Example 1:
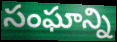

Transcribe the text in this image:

సంఘాన్ని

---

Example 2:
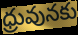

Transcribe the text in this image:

ధ్రువునకు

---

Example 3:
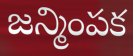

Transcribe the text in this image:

జన్మింపక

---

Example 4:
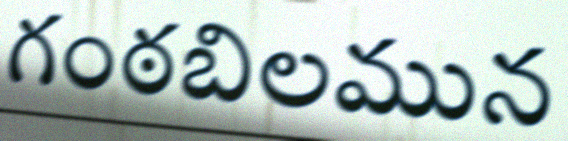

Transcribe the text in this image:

గంఠబిలమున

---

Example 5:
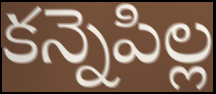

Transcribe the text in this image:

కన్నెపిల్ల